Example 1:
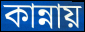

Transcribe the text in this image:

কান্নায়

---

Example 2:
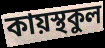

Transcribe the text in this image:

কায়স্থকুল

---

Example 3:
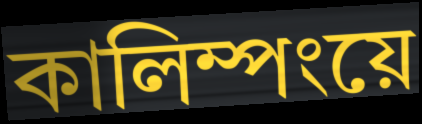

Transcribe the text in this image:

কালিম্পংয়ে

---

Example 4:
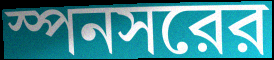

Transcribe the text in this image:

স্পনসরের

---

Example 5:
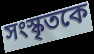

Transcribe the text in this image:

সংস্কৃতকে